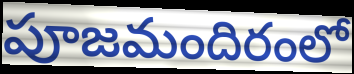
పూజమందిరంలో